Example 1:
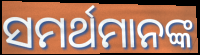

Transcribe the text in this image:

ସମର୍ଥମାନଙ୍କ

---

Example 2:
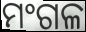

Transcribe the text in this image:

ମଂଗଳ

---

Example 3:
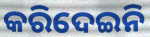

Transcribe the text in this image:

କରିଦେଇନି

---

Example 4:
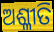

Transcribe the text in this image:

ଅଶ୍ଳୀତି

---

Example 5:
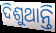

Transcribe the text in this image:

ଦିଶୁଥାନ୍ତି